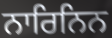
ਨਾਰਿਨਿਨ